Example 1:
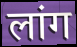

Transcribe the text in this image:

लांग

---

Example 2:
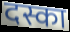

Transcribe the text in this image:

दस्का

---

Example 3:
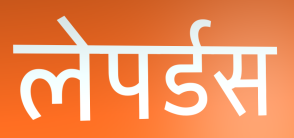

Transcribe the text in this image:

लेपर्डस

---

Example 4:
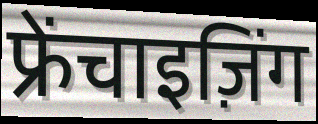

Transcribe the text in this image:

फ्रेंचाइज़िंग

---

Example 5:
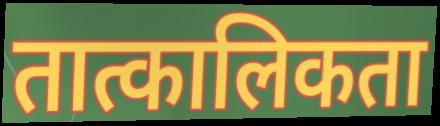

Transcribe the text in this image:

तात्कालिकता